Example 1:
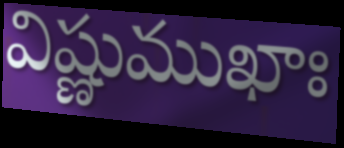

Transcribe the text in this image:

విష్ణుముఖాః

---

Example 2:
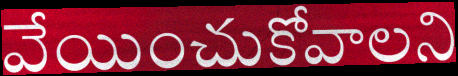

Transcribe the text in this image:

వేయించుకోవాలని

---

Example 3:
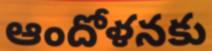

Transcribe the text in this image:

ఆందోళనకు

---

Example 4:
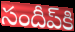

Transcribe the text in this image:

సందీప్‌కి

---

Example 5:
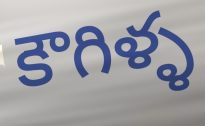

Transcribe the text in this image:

కౌగిళ్ళ